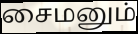
சைமனும்